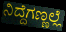
ನಿದ್ದೆಗಣ್ಣಲ್ಲೆ